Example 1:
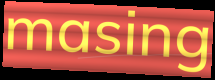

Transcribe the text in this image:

masing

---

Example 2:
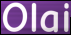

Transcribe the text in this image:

Olai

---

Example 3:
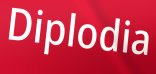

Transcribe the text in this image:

Diplodia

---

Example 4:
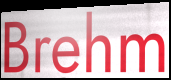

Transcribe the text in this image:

Brehm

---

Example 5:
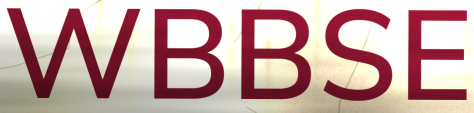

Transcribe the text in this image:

WBBSE